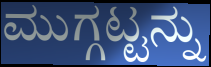
ಮುಗ್ಗಟ್ಟನ್ನು